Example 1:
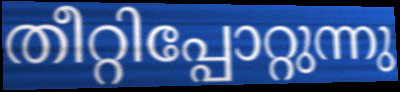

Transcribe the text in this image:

തീറ്റിപ്പോറ്റുന്നു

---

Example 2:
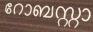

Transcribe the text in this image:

റോബസ്റ്റാ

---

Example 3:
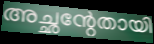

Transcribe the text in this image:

അച്ഛന്റേതായി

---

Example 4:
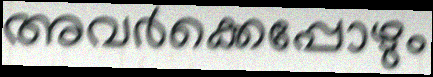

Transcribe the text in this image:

അവർക്കെപ്പോഴും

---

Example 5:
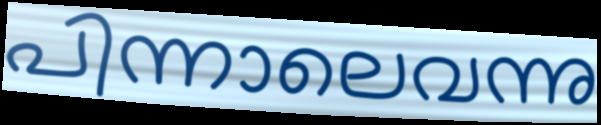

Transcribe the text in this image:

പിന്നാലെവന്നു